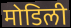
मोडिली